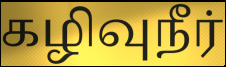
கழிவுநீர்